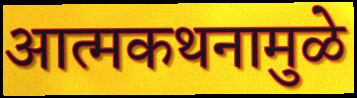
आत्मकथनामुळे